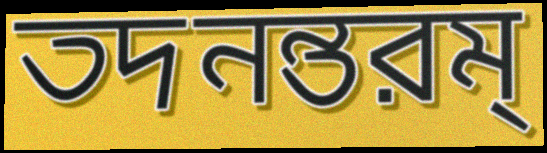
তদনন্তরম্